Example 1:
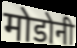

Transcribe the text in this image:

मोडोनी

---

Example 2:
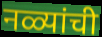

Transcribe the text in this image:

नळ्यांची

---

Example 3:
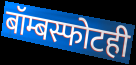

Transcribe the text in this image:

बॉम्बस्फोटही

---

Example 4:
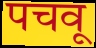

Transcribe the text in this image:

पचवू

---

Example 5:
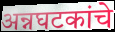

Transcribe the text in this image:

अन्नघटकांचे